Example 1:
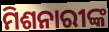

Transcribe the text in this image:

ମିଶନାରୀଙ୍କ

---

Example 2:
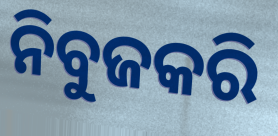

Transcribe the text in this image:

ନିବୁଜକରି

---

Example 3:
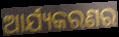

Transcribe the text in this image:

ଆର୍ଯ୍ୟକରଣର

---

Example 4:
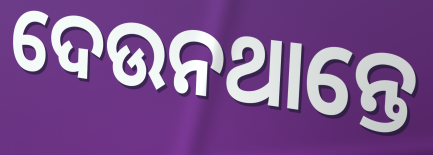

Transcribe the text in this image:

ଦେଉନଥାନ୍ତେ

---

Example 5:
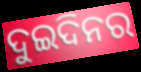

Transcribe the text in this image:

ଦୁଇଦିନର